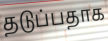
தடுப்பதாக